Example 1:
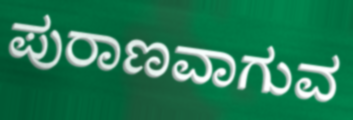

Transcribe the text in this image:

ಪುರಾಣವಾಗುವ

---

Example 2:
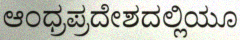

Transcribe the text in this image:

ಆಂಧ್ರಪ್ರದೇಶದಲ್ಲಿಯೂ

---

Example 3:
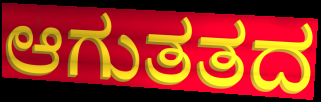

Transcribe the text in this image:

ಆಗುತತದ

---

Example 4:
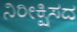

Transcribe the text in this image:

ನಿರೀಕ್ಷಿಸದ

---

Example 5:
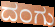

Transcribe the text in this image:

ದಂಗು